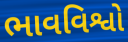
ભાવવિશ્વો